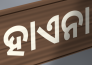
ହାଏନା